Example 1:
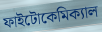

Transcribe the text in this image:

ফাইটোকেমিক্যাল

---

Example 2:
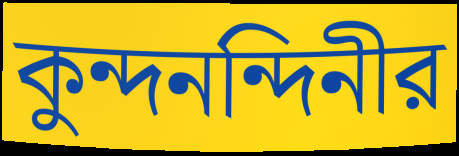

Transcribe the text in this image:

কুন্দনন্দিনীর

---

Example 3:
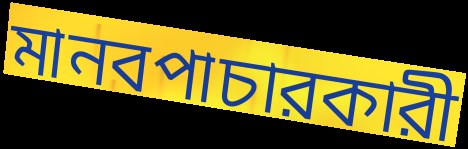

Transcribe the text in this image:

মানবপাচারকারী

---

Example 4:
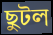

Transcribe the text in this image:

ছুটল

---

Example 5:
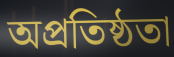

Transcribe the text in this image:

অপ্রতিষ্ঠতা